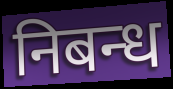
निबन्‍ध